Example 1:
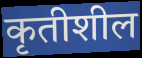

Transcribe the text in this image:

कृतीशील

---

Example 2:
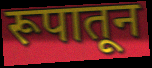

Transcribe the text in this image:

रूपातून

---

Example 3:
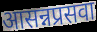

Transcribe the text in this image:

आसन्नप्रसवा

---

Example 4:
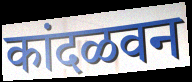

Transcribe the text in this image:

कांदळवन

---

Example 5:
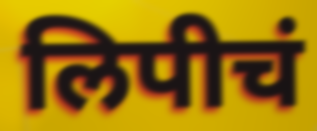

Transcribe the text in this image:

लिपीचं